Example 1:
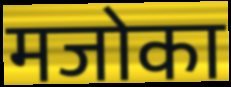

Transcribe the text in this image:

मजोका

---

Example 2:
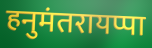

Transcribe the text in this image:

हनुमंतरायप्पा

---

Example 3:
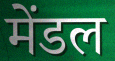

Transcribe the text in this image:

मेंडल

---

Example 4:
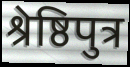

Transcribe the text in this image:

श्रेष्ठिपुत्र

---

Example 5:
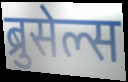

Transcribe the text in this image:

ब्रुसेल्स